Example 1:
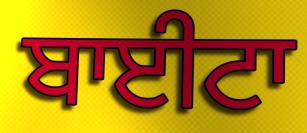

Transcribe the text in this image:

ਬਾਈਟਾ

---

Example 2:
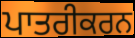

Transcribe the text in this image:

ਪਾਤਰੀਕਰਨ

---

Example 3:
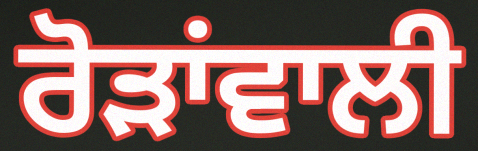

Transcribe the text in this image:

ਰੋੜਾਂਵਾਲੀ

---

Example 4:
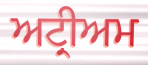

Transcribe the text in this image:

ਅਟ੍ਰੀਅਮ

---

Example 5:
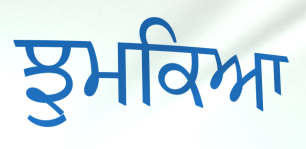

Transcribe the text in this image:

ਝੁਮਕਿਆ